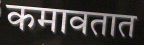
कमावतात